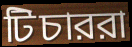
টিচাররা